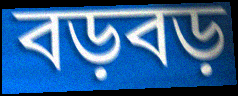
বড়বড়